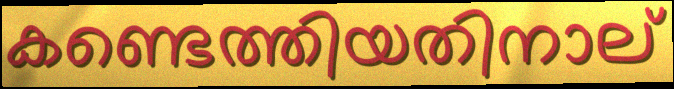
കണ്ടെത്തിയതിനാല്